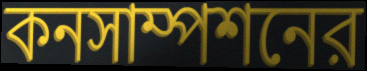
কনসাম্পশনের